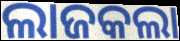
ଲାଜକଲା